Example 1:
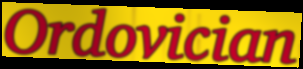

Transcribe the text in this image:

Ordovician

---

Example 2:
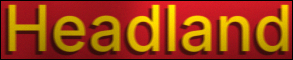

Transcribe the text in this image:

Headland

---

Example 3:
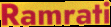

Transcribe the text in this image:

Ramrati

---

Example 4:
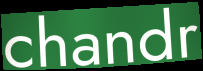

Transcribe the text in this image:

chandr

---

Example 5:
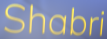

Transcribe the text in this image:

Shabri